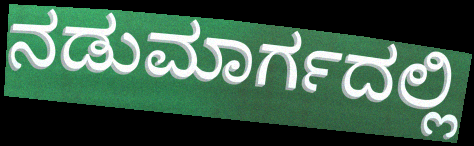
ನಡುಮಾರ್ಗದಲ್ಲಿ